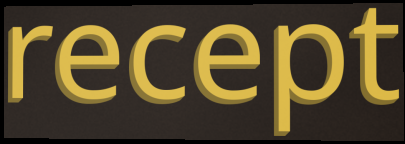
recept